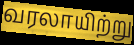
வரலாயிற்று